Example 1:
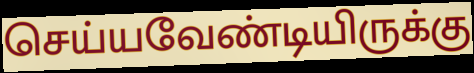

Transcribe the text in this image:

செய்யவேண்டியிருக்கு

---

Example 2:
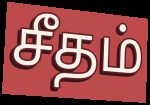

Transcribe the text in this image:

சீதம்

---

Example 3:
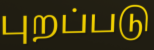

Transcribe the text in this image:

புறப்படு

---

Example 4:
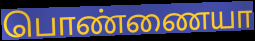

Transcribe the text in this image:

பொண்ணையா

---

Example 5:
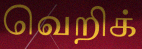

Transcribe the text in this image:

வெறிக்